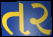
તર